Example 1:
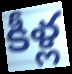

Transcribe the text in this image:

కీళ్ల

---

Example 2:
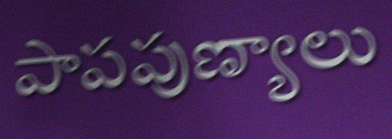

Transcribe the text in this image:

పాపపుణ్యాలు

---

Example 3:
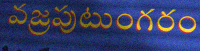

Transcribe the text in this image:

వజ్రపుటుంగరం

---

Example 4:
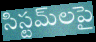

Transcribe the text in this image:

సిస్టమ్‌లపై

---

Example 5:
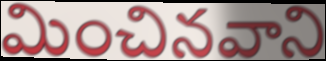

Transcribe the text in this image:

మించినవాని